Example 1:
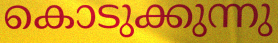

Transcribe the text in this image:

കൊടുക്കുന്നു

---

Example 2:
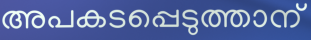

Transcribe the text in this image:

അപകടപ്പെടുത്താന്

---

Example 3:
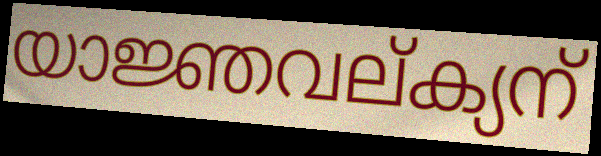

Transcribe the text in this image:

യാജ്ഞവല്ക്യന്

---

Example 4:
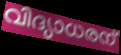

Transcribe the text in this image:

വിദ്യാധരന്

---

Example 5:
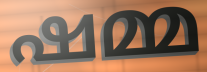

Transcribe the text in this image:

ഷമ്മ